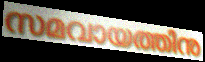
സമവായത്തിനു